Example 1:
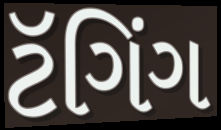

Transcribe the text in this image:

ટૅગિંગ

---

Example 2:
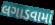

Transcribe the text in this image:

લગાડવામાં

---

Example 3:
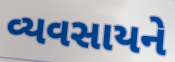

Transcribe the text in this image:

વ્યવસાયને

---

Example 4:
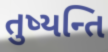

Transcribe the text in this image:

તુષ્યન્તિ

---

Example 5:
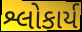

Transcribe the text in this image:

શ્લોકાર્ય